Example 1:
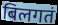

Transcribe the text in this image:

बिलगतं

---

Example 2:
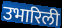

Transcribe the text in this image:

उभारिली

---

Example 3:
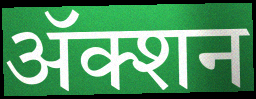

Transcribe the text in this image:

ॲक्शन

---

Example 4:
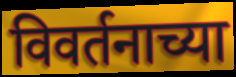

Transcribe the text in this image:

विवर्तनाच्या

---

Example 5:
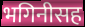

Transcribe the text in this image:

भगिनीसह